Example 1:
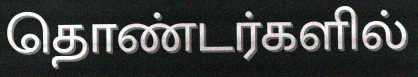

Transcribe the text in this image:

தொண்டர்களில்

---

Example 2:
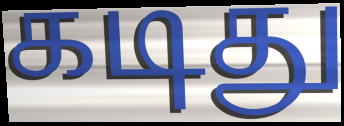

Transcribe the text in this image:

கடிது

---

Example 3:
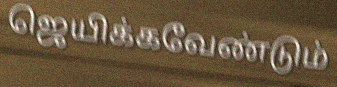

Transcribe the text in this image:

ஜெயிக்கவேண்டும்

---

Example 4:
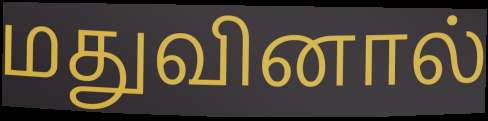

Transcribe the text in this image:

மதுவினால்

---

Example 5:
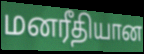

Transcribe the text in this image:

மனரீதியான